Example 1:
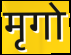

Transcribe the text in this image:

मृगो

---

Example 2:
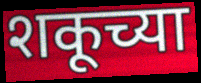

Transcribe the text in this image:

शकूच्या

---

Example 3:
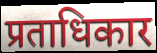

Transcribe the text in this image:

प्रताधिकार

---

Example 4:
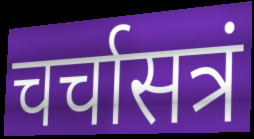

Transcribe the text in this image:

चर्चासत्रं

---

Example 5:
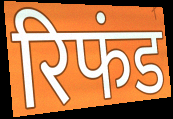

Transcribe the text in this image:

रिफंड